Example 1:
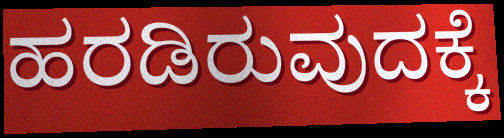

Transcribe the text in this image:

ಹರಡಿರುವುದಕ್ಕೆ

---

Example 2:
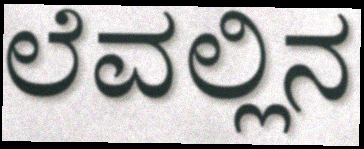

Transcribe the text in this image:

ಲೆವಲ್ಲಿನ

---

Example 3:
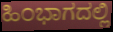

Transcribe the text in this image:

ಹಿಂಭಾಗದಲ್ಲಿ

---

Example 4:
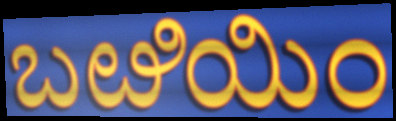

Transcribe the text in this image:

ಬೞಿಯಿಂ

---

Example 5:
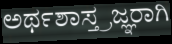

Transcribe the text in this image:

ಅರ್ಥಶಾಸ್ತ್ರಜ್ಞರಾಗಿ